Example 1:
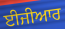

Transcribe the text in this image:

ਈਜੀਆਰ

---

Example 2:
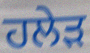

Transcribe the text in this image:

ਹਲੇੜ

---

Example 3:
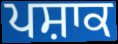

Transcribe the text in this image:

ਪਸ਼ਾਕ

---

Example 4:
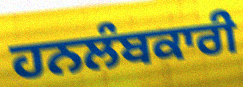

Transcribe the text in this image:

ਹਨਲੰਬਕਾਰੀ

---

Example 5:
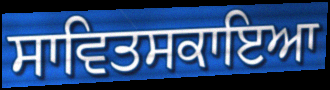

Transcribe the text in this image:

ਸਾਵਿਤਸਕਾਇਆ